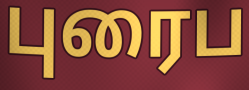
புரைப